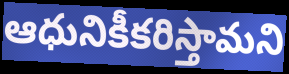
ఆధునికీకరిస్తామని